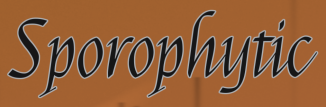
Sporophytic